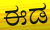
ಈಡ